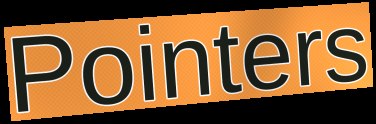
Pointers